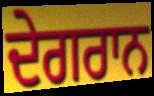
ਦੇਗਰਾਨ